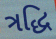
ત્રદ્ધિ